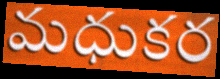
మధుకర